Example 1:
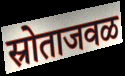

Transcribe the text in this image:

स्रोताजवळ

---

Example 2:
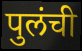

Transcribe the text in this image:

पुलंची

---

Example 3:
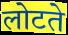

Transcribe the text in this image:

लोटते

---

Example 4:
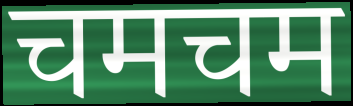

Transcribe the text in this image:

चमचम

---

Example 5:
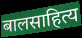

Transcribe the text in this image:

बालसाहित्य